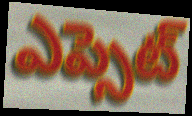
ఎప్సెట్